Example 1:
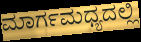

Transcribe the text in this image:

ಮಾರ್ಗಮಧ್ಯದಲ್ಲಿ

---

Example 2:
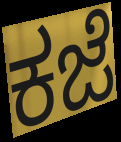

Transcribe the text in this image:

ಕಜೆ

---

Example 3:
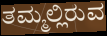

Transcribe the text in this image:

ತಮ್ಮಲ್ಲಿರುವ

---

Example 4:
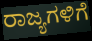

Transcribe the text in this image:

ರಾಜ್ಯಗಳಿಗೆ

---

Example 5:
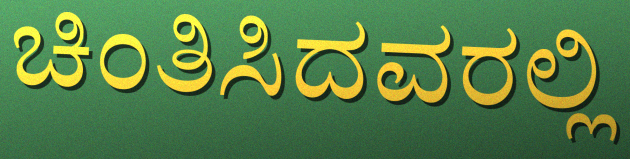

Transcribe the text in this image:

ಚಿಂತಿಸಿದವರಲ್ಲಿ